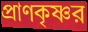
প্রাণকৃষ্ণর